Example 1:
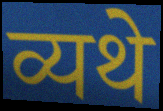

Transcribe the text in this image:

व्यथे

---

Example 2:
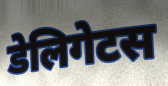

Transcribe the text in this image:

डेलिगेटस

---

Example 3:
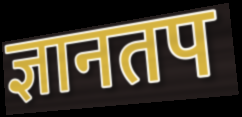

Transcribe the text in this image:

ज्ञानतप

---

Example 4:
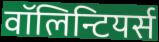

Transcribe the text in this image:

वॉलिन्टियर्स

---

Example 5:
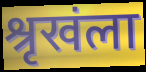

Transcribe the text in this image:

श्रृखंला